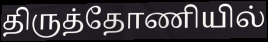
திருத்தோணியில்